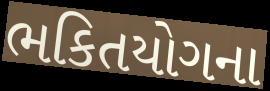
ભકિતયોગના